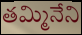
తమ్మినేని